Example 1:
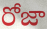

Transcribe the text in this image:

రోజా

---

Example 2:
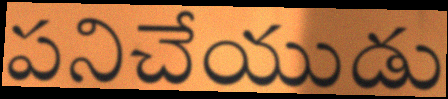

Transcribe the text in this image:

పనిచేయుడు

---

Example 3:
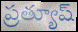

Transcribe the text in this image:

ప్రత్యూష్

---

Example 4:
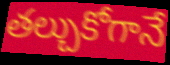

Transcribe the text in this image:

తల్చుకోగానే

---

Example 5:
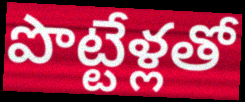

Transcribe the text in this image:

పొట్టేళ్లతో